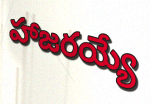
హాజరయ్యే